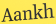
Aankh